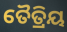
ତୈତ୍ରିୟ